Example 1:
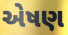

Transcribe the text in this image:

એષણ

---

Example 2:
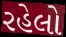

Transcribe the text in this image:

રહેલો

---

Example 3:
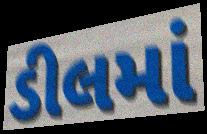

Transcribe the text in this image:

ડીલમાં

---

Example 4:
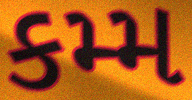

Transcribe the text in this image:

કમ્મ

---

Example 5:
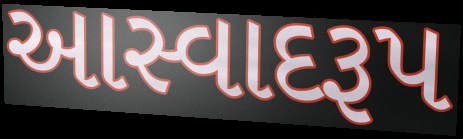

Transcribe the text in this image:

આસ્વાદરૂપ